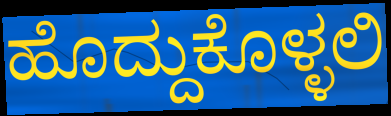
ಹೊದ್ದುಕೊಳ್ಳಲಿ